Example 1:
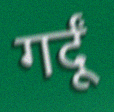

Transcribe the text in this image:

गर्दूं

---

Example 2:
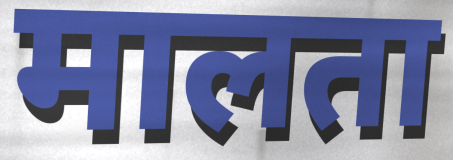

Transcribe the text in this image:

मालता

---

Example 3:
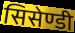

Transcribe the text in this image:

सिसेण्डी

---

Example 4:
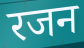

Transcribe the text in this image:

रजन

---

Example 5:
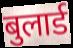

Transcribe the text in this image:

बुलार्ड